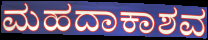
ಮಹದಾಕಾಶವ